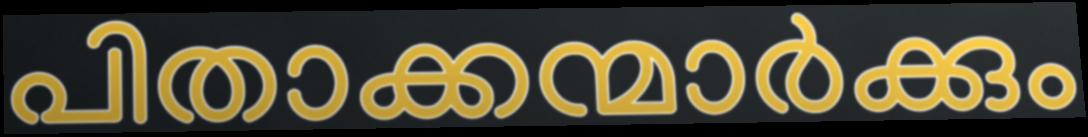
പിതാക്കന്മാർക്കും